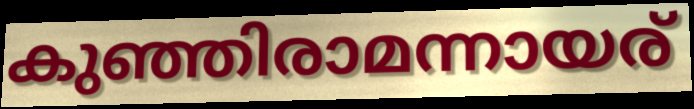
കുഞ്ഞിരാമന്നായര്